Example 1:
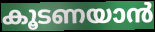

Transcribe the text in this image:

കൂടണയാൻ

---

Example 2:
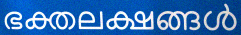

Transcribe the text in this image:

ഭക്തലക്ഷങ്ങൾ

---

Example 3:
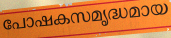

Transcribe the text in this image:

പോഷകസമൃദ്ധമായ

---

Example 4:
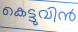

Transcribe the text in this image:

കെട്ടുവിൻ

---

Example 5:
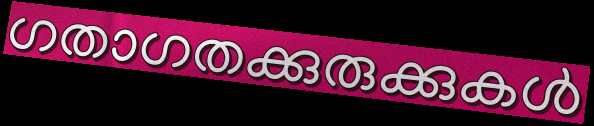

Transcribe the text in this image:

ഗതാഗതക്കുരുക്കുകൾ